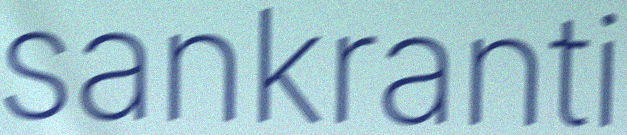
sankranti